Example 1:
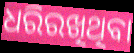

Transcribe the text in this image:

ଧରିରଖିଥିବା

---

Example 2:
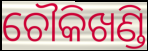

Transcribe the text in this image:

ଚୌକିଖଣ୍ଡି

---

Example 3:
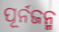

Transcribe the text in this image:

ପୂର୍ନଜନ୍ମ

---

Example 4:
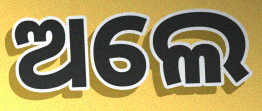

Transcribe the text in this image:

ଅଲେ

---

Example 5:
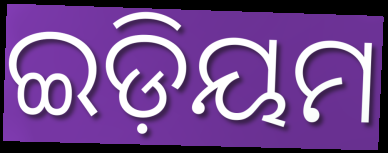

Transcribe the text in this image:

ଇଡ଼ିୟମ